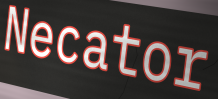
Necator